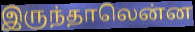
இருந்தாலென்ன